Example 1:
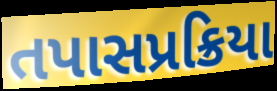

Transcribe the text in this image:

તપાસપ્રક્રિયા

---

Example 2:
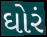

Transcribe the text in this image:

ઘોરં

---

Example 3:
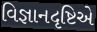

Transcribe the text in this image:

વિજ્ઞાનદૃષ્ટિએ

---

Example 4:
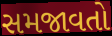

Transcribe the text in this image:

સમજાવતો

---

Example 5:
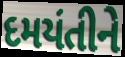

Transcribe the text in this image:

દમયંતીને